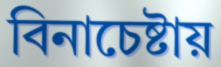
বিনাচেষ্টায়